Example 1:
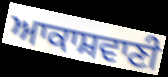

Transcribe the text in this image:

ਆਕਾਸ਼ਵਾਣੀ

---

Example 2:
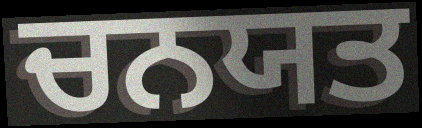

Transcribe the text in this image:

ਚਨਯਤ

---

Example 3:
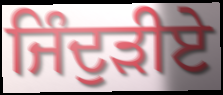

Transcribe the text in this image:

ਜਿੰਦੁੜੀਏ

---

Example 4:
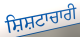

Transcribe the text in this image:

ਸ਼ਿਸ਼ਟਾਚਾਰੀ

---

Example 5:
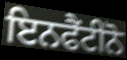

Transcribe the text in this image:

ਇਨਫੈਂਟੀਨੋ